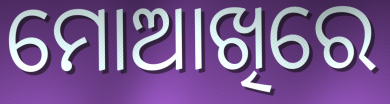
ମୋଆଖିରେ